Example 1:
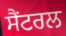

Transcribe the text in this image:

ਸੈਂਟਰਲ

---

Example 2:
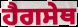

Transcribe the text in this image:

ਹੈਗਸੇਥ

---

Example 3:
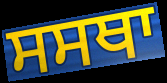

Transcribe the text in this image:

ਸਸਥਾ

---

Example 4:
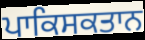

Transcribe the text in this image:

ਪਾਕਿਸਕਤਾਨ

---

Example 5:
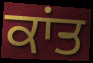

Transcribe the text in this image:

ਕਾਂਤ